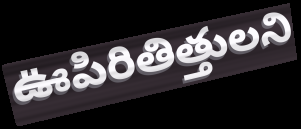
ఊపిరితిత్తులని